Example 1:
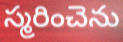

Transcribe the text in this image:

స్మరించెను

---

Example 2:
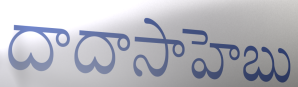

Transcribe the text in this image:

దాదాసాహెబు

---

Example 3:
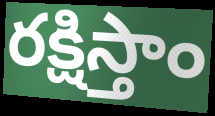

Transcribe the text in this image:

రక్షిస్తాం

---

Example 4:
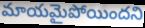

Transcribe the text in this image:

మాయమైపోయిందని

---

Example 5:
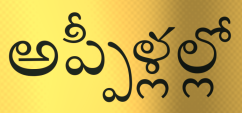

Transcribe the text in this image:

అప్పీళ్లల్లో